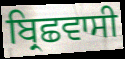
ਬ੍ਰਿਛਵਾਸੀ